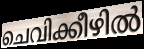
ചെവിക്കീഴിൽ